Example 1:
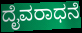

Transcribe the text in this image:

ದೈವರಾಧನೆ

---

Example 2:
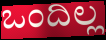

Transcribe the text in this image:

ಒಂದಿಲ್ಲ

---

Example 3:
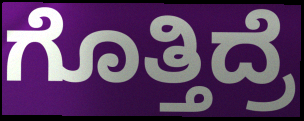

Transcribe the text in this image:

ಗೊತ್ತಿದ್ರೆ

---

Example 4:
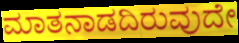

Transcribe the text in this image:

ಮಾತನಾಡದಿರುವುದೇ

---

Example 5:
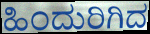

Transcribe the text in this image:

ಹಿಂದುರಿಗಿದ